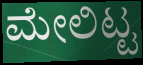
ಮೇಲಿಟ್ಟ